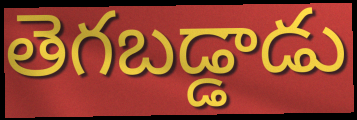
తెగబడ్డాడు